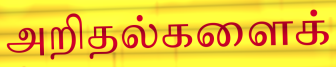
அறிதல்களைக்